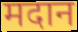
मदान